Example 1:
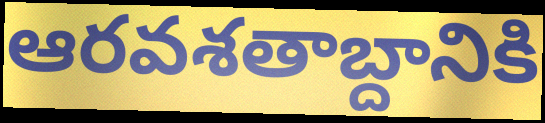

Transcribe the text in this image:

ఆరవశతాబ్దానికి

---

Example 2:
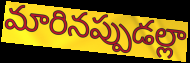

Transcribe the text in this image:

మారినప్పుడల్లా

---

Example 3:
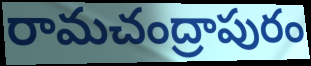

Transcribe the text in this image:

రామచంద్రాపురం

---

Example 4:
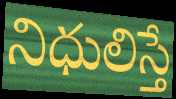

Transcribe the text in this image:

నిధులిస్తే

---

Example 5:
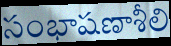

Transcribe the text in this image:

సంభాషణాశీలి